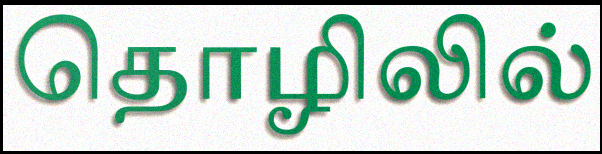
தொழிலில்